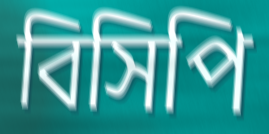
বিসিপি